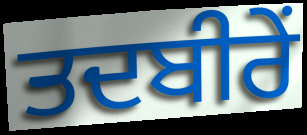
ਤਦਬੀਰੇਂ